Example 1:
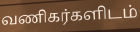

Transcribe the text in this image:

வணிகர்களிடம்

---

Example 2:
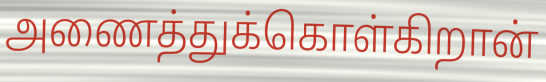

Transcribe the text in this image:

அணைத்துக்கொள்கிறான்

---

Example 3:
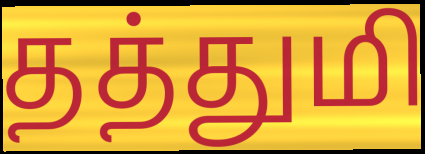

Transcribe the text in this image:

தத்துமி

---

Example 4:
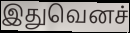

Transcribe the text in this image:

இதுவெனச்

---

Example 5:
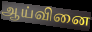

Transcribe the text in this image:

ஆய்வினை